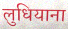
लुधियाना